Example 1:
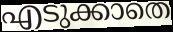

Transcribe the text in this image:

എടുക്കാതെ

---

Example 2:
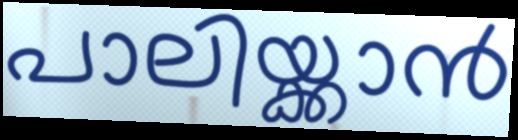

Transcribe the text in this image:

പാലിയ്ക്കാൻ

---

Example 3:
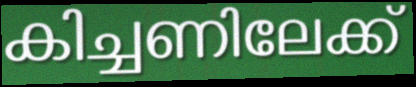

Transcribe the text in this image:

കിച്ചണിലേക്ക്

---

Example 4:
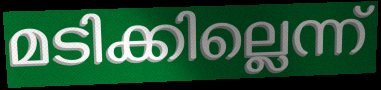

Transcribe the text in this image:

മടിക്കില്ലെന്ന്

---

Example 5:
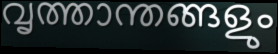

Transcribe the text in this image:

വൃത്താന്തങ്ങളും